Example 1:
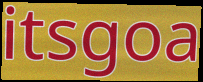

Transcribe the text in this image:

itsgoa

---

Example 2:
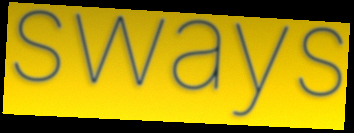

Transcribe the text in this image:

sways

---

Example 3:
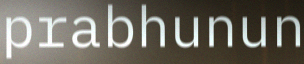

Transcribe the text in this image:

prabhunun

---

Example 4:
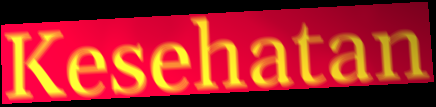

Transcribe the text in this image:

Kesehatan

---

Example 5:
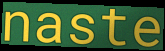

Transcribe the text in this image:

naste